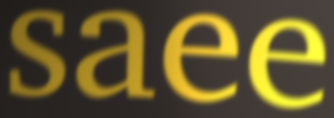
saee